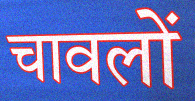
चावलों